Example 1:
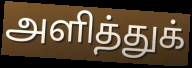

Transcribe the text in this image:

அளித்துக்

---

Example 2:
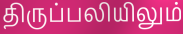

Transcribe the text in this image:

திருப்பலியிலும்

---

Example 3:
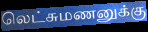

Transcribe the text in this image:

லெட்சுமணனுக்கு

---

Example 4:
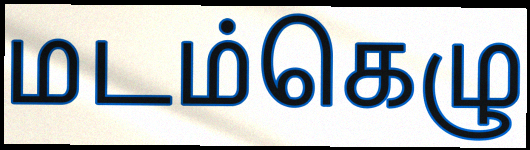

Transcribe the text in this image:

மடம்கெழு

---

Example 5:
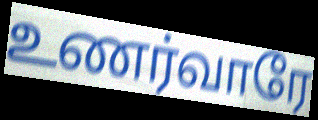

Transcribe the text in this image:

உணர்வாரே